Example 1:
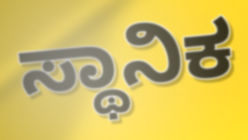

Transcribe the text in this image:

ಸ್ಥಾನಿಕ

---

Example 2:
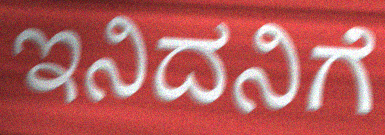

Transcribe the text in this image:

ಇನಿದನಿಗೆ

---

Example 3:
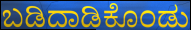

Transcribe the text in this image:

ಬಡಿದಾಡಿಕೊಂಡು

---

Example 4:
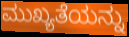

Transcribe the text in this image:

ಮುಖ್ಯತೆಯನ್ನು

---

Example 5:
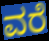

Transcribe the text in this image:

ವರೆ